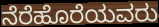
ನೆರೆಹೊರೆಯವರು